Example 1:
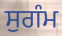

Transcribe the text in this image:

ਸੁਗੰਮ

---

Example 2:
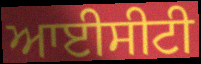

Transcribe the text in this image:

ਆਈਸੀਟੀ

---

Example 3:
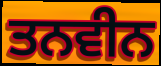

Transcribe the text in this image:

ਤਨਵੀਨ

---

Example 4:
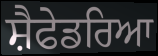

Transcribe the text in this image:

ਸ਼ੈਫੇਡਰਿਆ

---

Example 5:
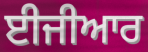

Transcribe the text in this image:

ਈਜੀਆਰ